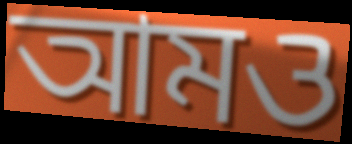
আমও